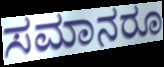
ಸಮಾನರೂ